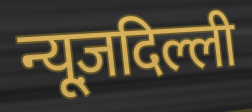
न्यूज़दिल्ली